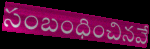
సంబంధించినవే